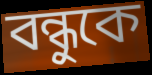
বন্ধুকে